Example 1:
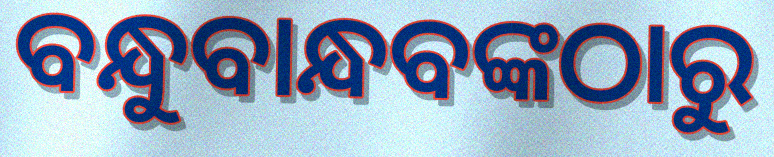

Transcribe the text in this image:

ବନ୍ଧୁବାନ୍ଧବଙ୍କଠାରୁ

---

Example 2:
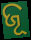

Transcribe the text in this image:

ଜୂ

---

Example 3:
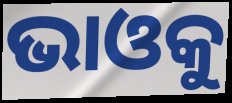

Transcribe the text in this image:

ଭାଓକୁ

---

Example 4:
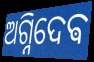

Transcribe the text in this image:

ଅଗ୍ନିଦେଵ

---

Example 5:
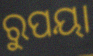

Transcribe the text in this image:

ରୁପୟା